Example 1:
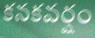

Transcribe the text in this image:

కనకవర్షం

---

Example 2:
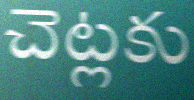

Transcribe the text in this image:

చెట్లకు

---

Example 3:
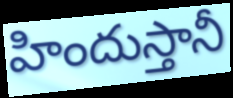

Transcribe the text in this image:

హిందుస్తానీ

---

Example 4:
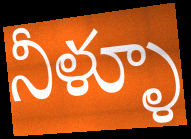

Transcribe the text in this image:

నీళ్ళూ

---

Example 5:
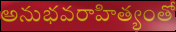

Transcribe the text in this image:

అనుభవరాహిత్యంతో